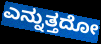
ಎನ್ನುತ್ತದೋ